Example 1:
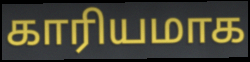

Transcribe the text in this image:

காரியமாக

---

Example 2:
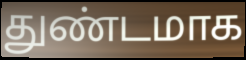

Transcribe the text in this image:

துண்டமாக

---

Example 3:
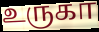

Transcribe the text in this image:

உருகா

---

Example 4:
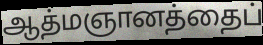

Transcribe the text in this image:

ஆத்மஞானத்தைப்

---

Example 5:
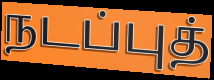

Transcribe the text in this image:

நடப்புத்